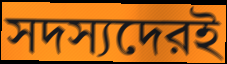
সদস্যদেরই